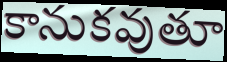
కానుకవుతూ